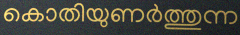
കൊതിയുണർത്തുന്ന